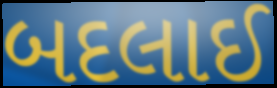
બદલાઈ